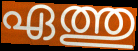
ഏത്തു